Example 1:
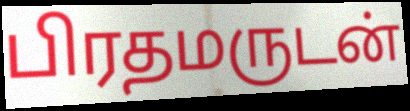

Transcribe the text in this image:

பிரதமருடன்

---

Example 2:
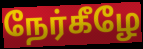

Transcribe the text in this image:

நேர்கீழே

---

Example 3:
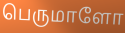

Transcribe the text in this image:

பெருமாளோ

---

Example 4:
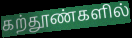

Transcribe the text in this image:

கற்தூண்களில்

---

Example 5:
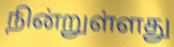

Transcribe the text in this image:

நின்றுள்ளது